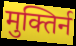
मुक्तिर्न